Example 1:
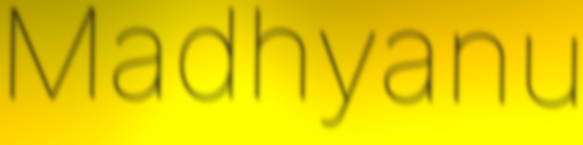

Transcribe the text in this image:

Madhyanu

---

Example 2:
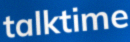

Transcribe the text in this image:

talktime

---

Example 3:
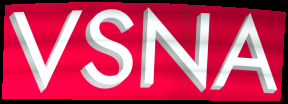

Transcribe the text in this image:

VSNA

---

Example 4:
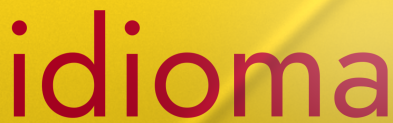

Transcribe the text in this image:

idioma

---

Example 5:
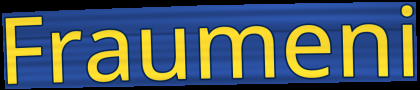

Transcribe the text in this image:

Fraumeni